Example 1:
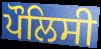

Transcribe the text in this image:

ਪੌਲਿਸੀ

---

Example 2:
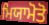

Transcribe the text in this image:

ਮਿਯਾਮੋਤੋ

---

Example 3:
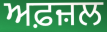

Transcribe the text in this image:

ਅਫ਼ਜ਼ਲ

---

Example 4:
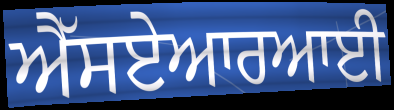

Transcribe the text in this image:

ਐੱਸਏਆਰਆਈ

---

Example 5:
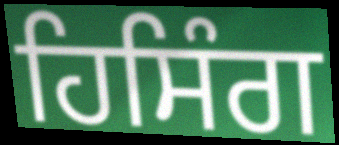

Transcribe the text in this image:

ਹਿਸਿੰਗ